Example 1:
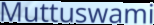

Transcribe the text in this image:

Muttuswami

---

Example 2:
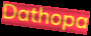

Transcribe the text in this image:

Dathopa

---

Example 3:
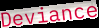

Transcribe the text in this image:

Deviance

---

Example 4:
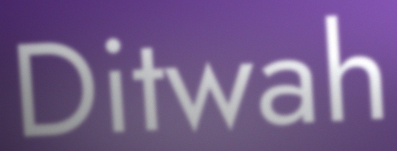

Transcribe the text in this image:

Ditwah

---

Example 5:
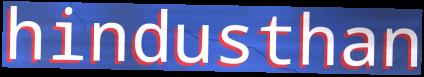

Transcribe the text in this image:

hindusthan